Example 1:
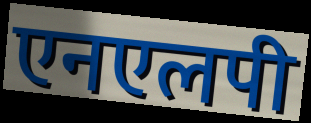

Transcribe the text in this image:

एनएलपी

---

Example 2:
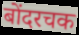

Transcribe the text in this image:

बोंदरचक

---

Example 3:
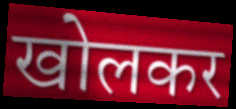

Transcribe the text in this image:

खोलकर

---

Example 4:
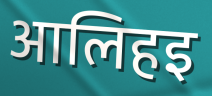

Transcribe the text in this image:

आलिहइ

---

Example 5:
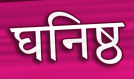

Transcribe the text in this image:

घनिष्ठ